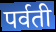
पर्वती